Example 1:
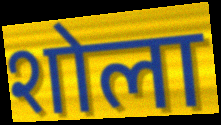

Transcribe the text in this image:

शोला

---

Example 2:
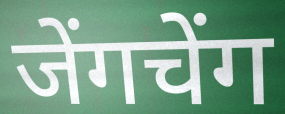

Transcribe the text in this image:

जेंगचेंग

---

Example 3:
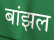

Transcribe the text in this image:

बांझल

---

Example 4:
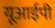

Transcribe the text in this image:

यूआईपी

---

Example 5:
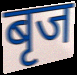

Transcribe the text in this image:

बृज